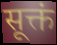
सूक्तं